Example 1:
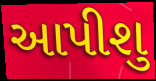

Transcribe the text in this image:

આપીશુ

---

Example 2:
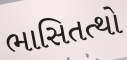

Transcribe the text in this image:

ભાસિતત્થો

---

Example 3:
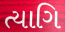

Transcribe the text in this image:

ત્યાગિ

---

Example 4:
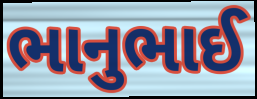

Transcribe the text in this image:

ભાનુભાઈ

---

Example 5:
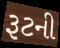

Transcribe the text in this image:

રૂટની